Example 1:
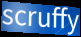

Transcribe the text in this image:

scruffy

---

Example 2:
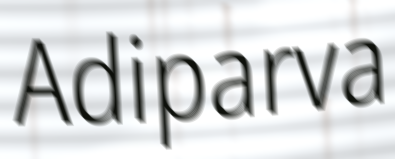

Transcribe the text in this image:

Adiparva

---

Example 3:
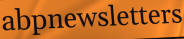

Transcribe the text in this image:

abpnewsletters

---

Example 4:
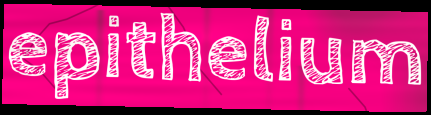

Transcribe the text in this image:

epithelium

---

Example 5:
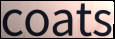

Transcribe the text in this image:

coats